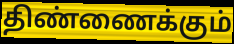
திண்ணைக்கும்